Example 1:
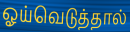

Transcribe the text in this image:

ஓய்வெடுத்தால்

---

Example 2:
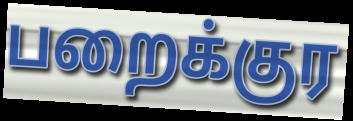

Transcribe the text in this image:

பறைக்குர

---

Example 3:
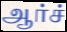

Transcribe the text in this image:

ஆர்ச்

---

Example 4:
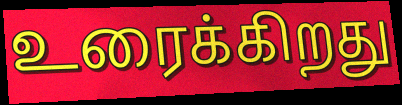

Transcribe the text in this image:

உரைக்கிறது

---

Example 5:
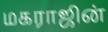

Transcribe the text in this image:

மகராஜின்